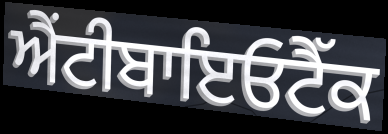
ਐਂਟੀਬਾਇਓਟੈੱਕ